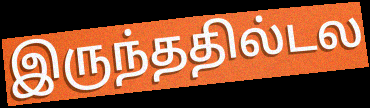
இருந்ததில்டல